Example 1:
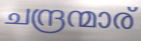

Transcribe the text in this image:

ചന്ദ്രന്മാര്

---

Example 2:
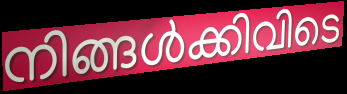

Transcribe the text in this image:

നിങ്ങൾക്കിവിടെ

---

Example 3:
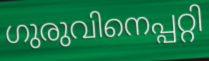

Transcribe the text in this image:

ഗുരുവിനെപ്പറ്റി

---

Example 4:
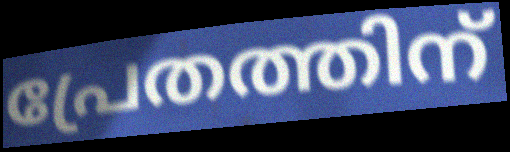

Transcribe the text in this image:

പ്രേതത്തിന്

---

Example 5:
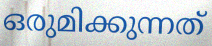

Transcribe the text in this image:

ഒരുമിക്കുന്നത്